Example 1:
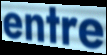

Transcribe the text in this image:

entre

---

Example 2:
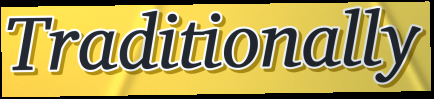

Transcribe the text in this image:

Traditionally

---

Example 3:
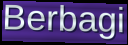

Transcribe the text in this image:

Berbagi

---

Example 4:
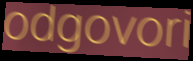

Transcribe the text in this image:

odgovori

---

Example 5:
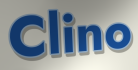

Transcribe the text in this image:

Clino